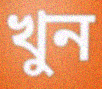
খুন